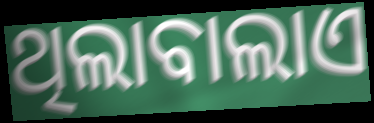
ଥିଲାବାଲାଏ